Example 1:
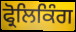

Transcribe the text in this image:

ਫ੍ਰੋਲਿਕਿੰਗ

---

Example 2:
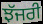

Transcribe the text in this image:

ਝੱਜਰੀ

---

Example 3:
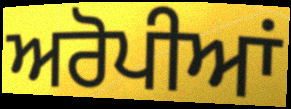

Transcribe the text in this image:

ਅਰੋਪੀਆਂ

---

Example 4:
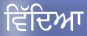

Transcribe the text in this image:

ਵਿੱਦਿਆ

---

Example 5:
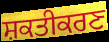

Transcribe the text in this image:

ਸ਼ਕਤੀਕਰਣ